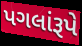
પગલાંરૂપે